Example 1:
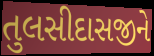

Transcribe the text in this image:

તુલસીદાસજીને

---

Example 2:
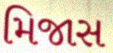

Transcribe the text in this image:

મિજાસ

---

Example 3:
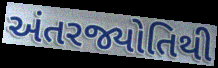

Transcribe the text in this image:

અંતરજ્યોતિથી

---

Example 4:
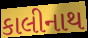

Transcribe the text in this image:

કાલીનાથ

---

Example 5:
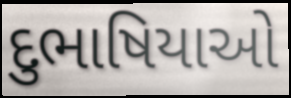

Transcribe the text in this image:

દુભાષિયાઓ